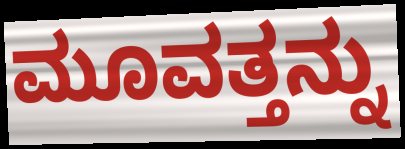
ಮೂವತ್ತನ್ನು